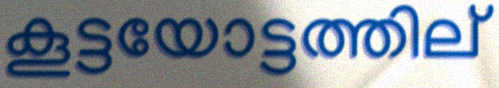
കൂട്ടയോട്ടത്തില്